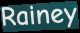
Rainey